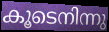
കൂടെനിന്നു